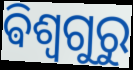
ଵିଶ୍ଵଗୁରୁ